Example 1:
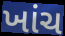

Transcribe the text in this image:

ખાંચ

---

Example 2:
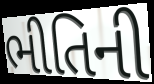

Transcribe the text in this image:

ભીતિની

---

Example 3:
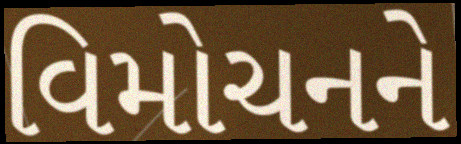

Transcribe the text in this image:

વિમોચનને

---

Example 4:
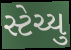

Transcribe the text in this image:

સ્ટેચ્યુ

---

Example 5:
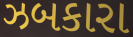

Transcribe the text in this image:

ઝબકારા